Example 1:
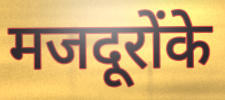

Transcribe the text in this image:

मजदूरोंके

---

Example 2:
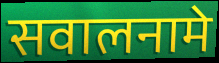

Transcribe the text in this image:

सवालनामे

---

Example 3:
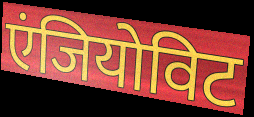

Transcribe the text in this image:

एंजियोविट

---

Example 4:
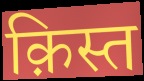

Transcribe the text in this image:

क़िस्त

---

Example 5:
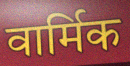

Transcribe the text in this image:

वार्मिक